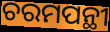
ଚରମପନ୍ଥୀ